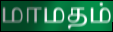
மாமதம்